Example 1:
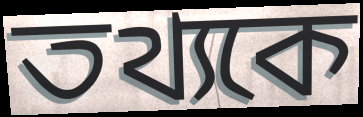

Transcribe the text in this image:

তথ্যকে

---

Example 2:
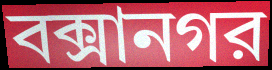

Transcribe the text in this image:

বক্সানগর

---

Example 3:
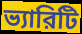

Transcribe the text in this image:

ভ্যারিটি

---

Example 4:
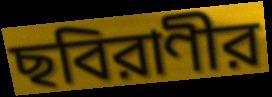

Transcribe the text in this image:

ছবিরাণীর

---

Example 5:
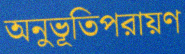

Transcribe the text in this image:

অনুভূতিপরায়ণ